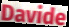
Davide